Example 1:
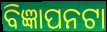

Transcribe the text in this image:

ବିଜ୍ଞାପନଟା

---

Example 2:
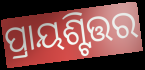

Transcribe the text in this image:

ପ୍ରାୟଶ୍ଟିତ୍ତର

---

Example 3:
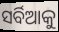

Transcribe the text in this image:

ସର୍ବିଆକୁ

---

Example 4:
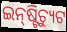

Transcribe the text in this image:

ଇନ୍‌ଷ୍ଟିଚ୍ୟୁଟ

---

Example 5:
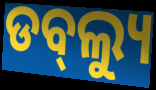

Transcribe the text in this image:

ଡବ୍‌ଲ୍ୟୁ